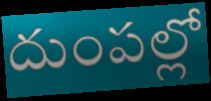
దుంపల్లో